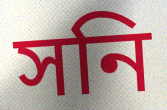
সনি